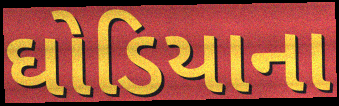
ઘોડિયાના